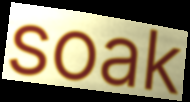
soak